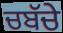
ਚਬੱਚੇ